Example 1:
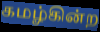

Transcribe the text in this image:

கமழ்கின்ற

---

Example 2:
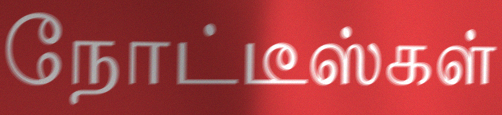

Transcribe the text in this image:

நோட்டீஸ்கள்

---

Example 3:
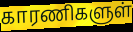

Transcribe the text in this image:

காரணிகளுள்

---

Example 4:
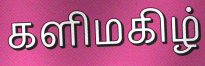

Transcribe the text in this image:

களிமகிழ்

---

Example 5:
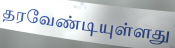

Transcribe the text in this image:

தரவேண்டியுள்ளது